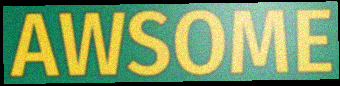
AWSOME